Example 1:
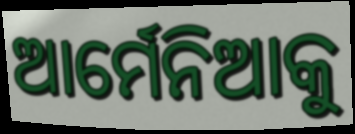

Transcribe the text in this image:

ଆର୍ମେନିଆକୁ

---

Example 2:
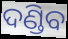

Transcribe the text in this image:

ଦଣ୍ଡିବ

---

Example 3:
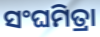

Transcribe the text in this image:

ସଂଘମିତ୍ରା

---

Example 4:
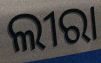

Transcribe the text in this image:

ଲୀରା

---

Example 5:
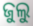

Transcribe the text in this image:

ଜୁଲୁ